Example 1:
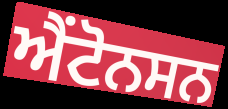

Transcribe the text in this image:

ਐਂਟੋਨਸਨ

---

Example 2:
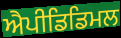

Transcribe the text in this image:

ਐਪੀਡਿਡਿਮਲ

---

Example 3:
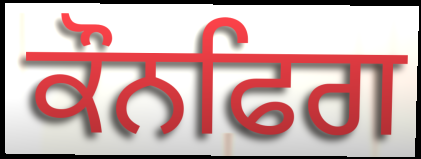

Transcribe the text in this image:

ਕੌਨਫਿਗ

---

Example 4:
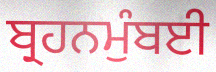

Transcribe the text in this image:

ਬ੍ਰਹਨਮੁੰਬਈ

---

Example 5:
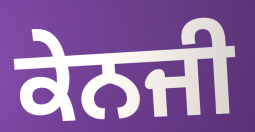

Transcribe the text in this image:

ਕੇਨਜੀ